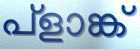
പ്ളാങ്ക്